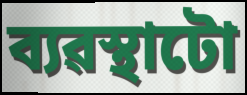
ব্যৱস্থাটো